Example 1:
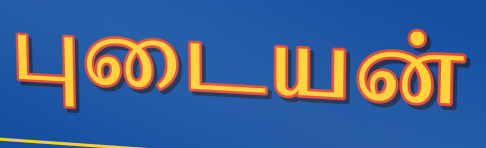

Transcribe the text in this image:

புடையன்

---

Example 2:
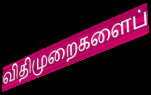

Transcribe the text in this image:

விதிமுறைகளைப்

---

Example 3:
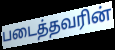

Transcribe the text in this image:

படைத்தவரின்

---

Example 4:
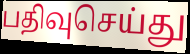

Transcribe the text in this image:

பதிவுசெய்து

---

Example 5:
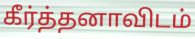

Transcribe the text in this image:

கீர்த்தனாவிடம்